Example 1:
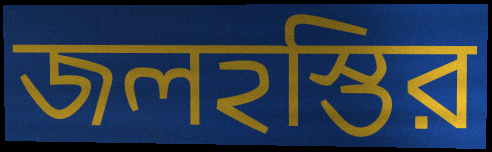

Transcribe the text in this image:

জলহস্তির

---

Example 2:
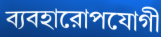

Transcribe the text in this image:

ব্যবহারোপযোগী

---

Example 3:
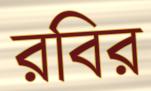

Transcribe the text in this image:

রবির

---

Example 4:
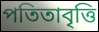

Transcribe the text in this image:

পতিতাবৃত্তি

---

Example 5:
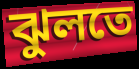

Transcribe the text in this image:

ঝুলতে